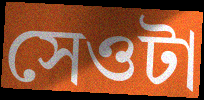
সেওটা